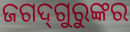
ଜଗଦ୍‌ଗୁରୁଙ୍କର